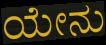
ಯೇನು